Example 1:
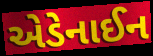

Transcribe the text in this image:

એડેનાઈન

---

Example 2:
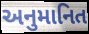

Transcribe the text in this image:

અનુમાનિત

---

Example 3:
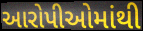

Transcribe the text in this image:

આરોપીઓમાંથી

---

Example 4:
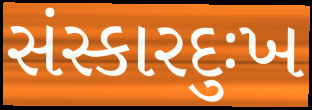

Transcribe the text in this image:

સંસ્કારદુઃખ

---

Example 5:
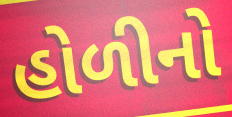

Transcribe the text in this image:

હોળીનો